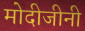
मोदीजीनी